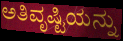
ಅತಿವೃಷ್ಟಿಯನ್ನು